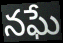
నఘే